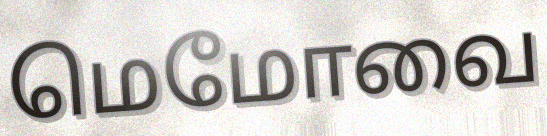
மெமோவை